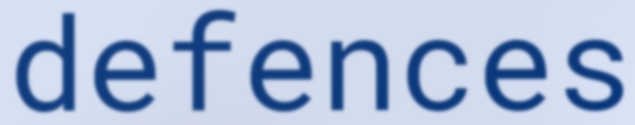
defences